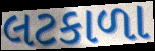
લટકાળા